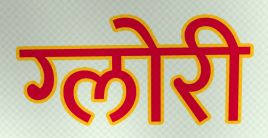
ग्लोरी